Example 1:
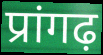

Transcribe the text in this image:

प्रांगढ़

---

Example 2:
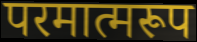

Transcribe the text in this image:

परमात्मरूप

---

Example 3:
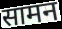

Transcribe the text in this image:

सामन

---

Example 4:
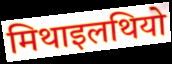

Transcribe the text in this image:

मिथाइलथियो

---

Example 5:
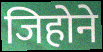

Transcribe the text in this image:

जिहोने